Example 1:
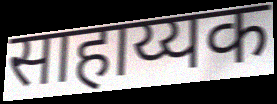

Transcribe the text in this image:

साहाय्यक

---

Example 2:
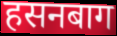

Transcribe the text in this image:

हसनबाग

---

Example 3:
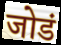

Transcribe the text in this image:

जोडं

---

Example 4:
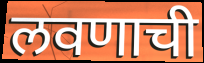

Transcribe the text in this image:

लवणाची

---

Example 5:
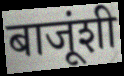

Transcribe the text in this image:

बाजूंशी